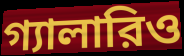
গ্যালারিও